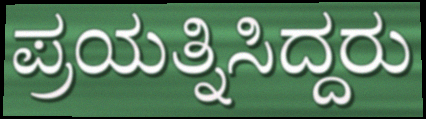
ಪ್ರಯತ್ನಿಸಿದ್ದರು